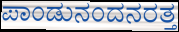
ಪಾಂಡುನಂದನರತ್ತ